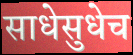
साधेसुधेच